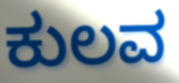
ಕುಲವ